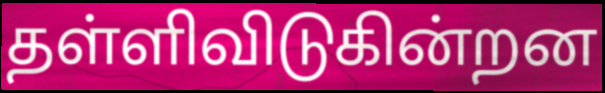
தள்ளிவிடுகின்றன